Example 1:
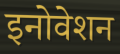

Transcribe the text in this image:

इनोवेशन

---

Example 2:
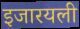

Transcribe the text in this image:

इजारयली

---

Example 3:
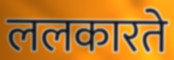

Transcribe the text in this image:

ललकारते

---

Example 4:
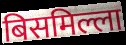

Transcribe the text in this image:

बिसमिल्ला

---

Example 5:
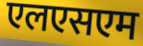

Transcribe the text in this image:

एलएसएम